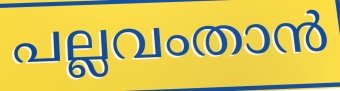
പല്ലവംതാൻ